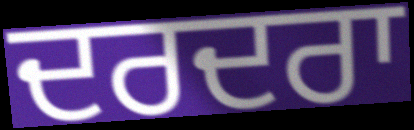
ਦਰਦਰਾ